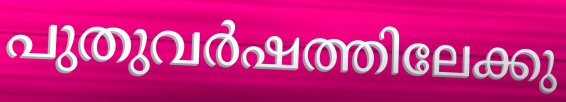
പുതുവർഷത്തിലേക്കു